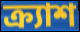
ক্র্যাশ